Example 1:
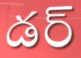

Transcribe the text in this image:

డర్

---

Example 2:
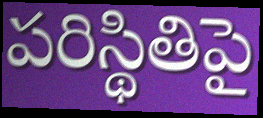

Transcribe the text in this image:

పరిస్థితిపై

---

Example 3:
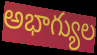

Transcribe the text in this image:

అభాగ్యుల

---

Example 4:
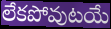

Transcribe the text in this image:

లేకపోవుటయే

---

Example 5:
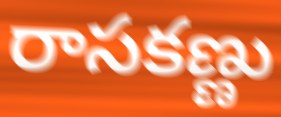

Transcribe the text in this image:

రాసకణ్ణు